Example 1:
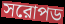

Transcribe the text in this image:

সরোপড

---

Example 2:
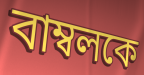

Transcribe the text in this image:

বাম্বলকে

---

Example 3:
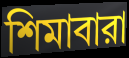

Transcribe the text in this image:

শিমাবারা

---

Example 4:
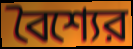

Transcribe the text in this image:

বৈশ্যের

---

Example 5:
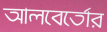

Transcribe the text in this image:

আলবের্তোর